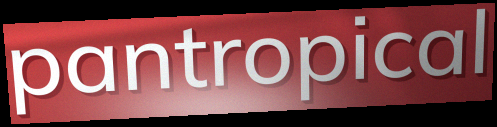
pantropical